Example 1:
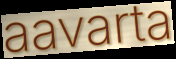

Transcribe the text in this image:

aavarta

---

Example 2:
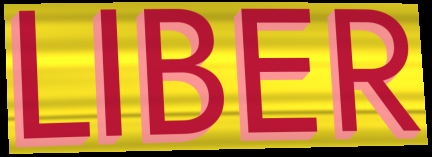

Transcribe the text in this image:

LIBER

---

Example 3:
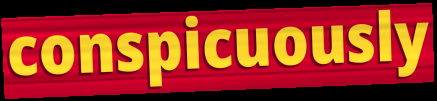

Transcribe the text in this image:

conspicuously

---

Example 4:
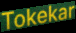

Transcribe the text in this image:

Tokekar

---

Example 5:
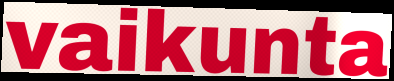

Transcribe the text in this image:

vaikunta